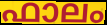
ഫാലം